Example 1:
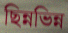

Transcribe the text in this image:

ছিন্নভিন্ন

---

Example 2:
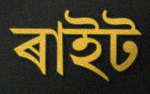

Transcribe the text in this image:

ৰাইট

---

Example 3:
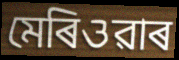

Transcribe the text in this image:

মেৰিওৱাৰ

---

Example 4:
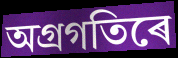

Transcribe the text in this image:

অগ্ৰগতিৰে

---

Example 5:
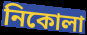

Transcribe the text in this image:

নিকোলা